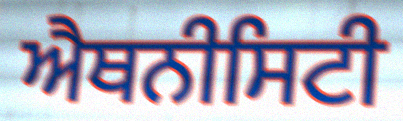
ਐਥਨੀਸਿਟੀ